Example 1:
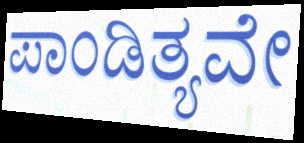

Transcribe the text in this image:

ಪಾಂಡಿತ್ಯವೇ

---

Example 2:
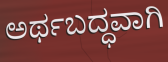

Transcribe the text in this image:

ಅರ್ಥಬದ್ಧವಾಗಿ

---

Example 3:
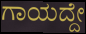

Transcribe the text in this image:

ಗಾಯದ್ದೇ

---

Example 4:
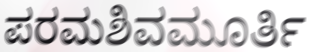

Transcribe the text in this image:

ಪರಮಶಿವಮೂರ್ತಿ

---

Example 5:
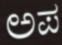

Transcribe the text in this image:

ಅಪ